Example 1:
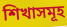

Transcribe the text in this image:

শিখাসমূহ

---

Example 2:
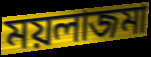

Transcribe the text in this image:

ময়লাজমা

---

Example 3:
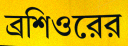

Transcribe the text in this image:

ব্রশিওরের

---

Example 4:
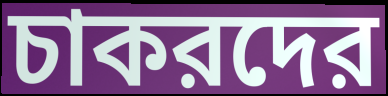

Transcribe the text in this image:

চাকরদের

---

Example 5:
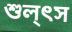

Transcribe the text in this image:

শুল্ৎস